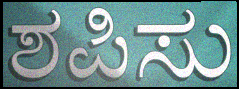
ಶಪಿಸು